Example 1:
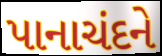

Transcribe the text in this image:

પાનાચંદને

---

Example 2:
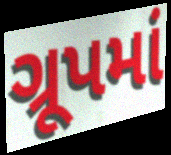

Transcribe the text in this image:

ગ્રૂપમાં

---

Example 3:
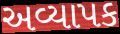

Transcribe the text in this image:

અવ્યાપક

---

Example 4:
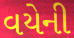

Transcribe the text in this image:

વયેની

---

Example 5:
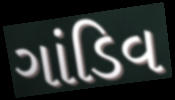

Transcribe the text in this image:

ગાંડિવ